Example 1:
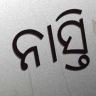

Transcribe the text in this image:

ନାସ୍ତି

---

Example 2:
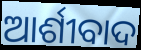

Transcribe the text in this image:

ଆର୍ଶୀବାଦ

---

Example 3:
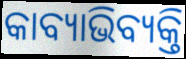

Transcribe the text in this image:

କାବ୍ୟାଭିବ୍ୟକ୍ତି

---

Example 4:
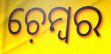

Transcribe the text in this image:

ଚ଼େମ୍ୱର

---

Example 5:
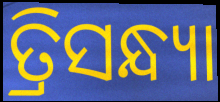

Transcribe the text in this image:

ତ୍ରିସନ୍ଧ୍ୟା